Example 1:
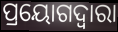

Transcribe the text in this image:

ପ୍ରୟୋଗଦ୍ଵାରା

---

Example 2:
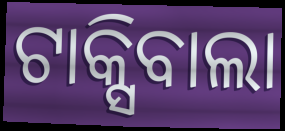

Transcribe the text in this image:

ଟାକ୍ସିବାଲା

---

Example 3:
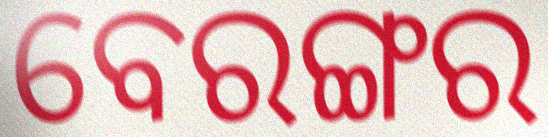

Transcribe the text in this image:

ବେରଙ୍ଗର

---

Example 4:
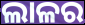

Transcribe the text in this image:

ଲାଳର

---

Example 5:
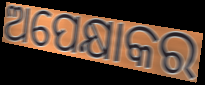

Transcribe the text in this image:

ଅପେକ୍ଷାକର